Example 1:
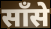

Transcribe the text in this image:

साँसे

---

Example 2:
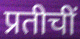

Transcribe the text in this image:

प्रतीचीं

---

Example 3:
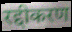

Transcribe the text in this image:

रद्दीकरण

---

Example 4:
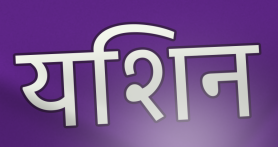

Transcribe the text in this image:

यशिन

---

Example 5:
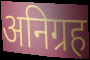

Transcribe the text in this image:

अनिग्रह